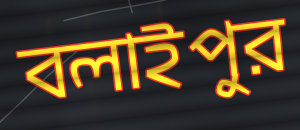
বলাইপুর